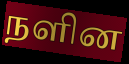
நளின